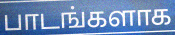
பாடங்களாக